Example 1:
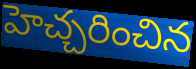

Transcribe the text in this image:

హెచ్చరించిన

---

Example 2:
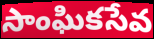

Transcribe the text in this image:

సాంఘికసేవ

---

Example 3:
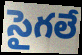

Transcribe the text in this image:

సైగలే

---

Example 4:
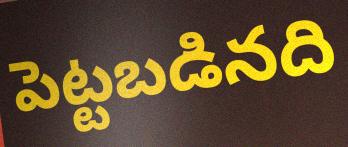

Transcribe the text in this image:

పెట్టబడినది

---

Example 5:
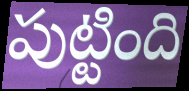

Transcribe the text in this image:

పుట్టింది